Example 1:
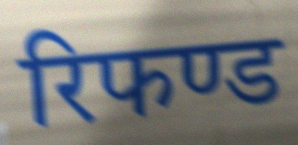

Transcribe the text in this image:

रिफण्ड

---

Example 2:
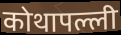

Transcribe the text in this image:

कोथापल्ली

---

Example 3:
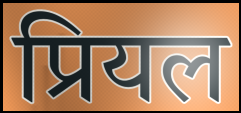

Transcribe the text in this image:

प्रियल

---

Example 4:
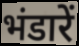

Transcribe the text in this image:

भंडारें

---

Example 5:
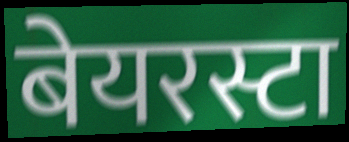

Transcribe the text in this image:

बेयरस्टा